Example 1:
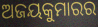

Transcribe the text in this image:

ଅଜୟକୁମାରର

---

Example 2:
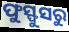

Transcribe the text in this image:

ଫୁସ୍ଫୁସରୁ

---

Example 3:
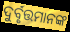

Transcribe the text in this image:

ଦୁର୍ବୃତ୍ତମାନଙ୍କ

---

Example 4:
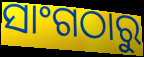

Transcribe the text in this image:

ସାଂଗଠାରୁ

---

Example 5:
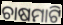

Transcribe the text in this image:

ଚାଷମାଟି